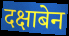
दक्षाबेन